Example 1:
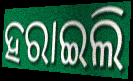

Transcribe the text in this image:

ହରାଇଲି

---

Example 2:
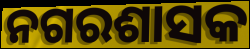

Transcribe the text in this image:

ନଗରଶାସକ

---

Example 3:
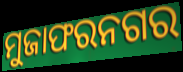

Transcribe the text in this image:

ମୁଜାଫରନଗର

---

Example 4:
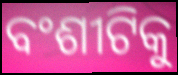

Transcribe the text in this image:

ବଂଶୀଟିକୁ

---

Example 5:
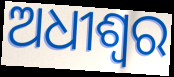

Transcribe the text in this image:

ଅଧୀଶ୍ୱର